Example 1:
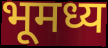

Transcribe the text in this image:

भूमध्य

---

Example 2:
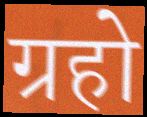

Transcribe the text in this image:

ग्रहो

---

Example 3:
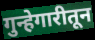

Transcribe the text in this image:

गुन्हेगारीतून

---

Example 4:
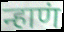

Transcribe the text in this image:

न्हाणं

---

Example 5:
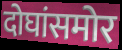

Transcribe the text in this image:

दोघांसमोर